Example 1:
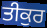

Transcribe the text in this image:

ਤੀਕੁਰ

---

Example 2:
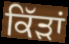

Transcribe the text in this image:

ਕਿੱੜਾਂ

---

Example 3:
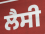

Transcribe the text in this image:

ਲੈਸੀ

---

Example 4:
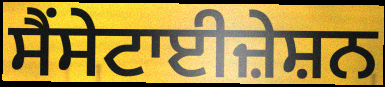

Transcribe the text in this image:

ਸੈਂਸੇਟਾਈਜ਼ੇਸ਼ਨ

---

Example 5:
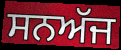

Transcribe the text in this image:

ਸਨਅੱਜ